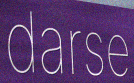
darse